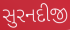
સુરનદીજી